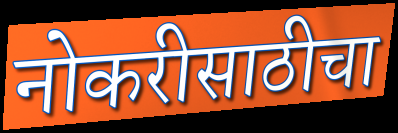
नोकरीसाठीचा